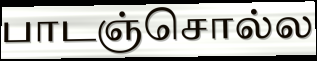
பாடஞ்சொல்ல